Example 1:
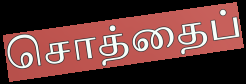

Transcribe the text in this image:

சொத்தைப்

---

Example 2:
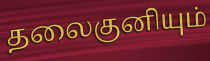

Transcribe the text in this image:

தலைகுனியும்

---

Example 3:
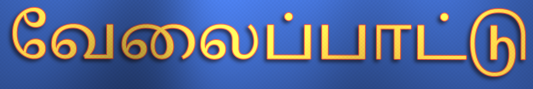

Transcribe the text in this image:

வேலைப்பாட்டு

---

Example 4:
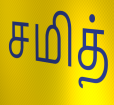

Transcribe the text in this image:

சமித்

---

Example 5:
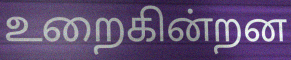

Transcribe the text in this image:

உறைகின்றன